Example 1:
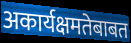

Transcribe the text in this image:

अकार्यक्षमतेबाबत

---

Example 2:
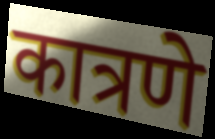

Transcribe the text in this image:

कात्रणे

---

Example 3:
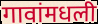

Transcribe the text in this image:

गावांमधली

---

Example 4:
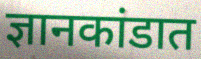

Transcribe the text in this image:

ज्ञानकांडात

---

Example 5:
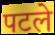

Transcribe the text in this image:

पटले